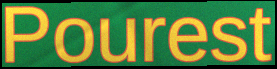
Pourest